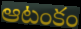
ఆటంకం